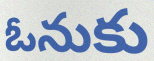
ఓనుకు